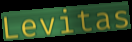
Levitas